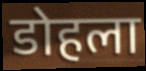
डोहला